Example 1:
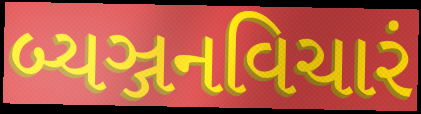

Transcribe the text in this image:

બ્યઞ્જનવિચારં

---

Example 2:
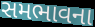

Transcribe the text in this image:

સમભાવના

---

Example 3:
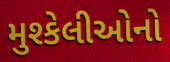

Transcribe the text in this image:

મુશ્કેલીઓનો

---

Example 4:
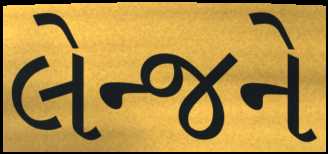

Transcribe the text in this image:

લેન્જને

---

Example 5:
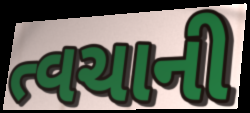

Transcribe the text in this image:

ત્વચાની